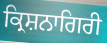
ਕ੍ਰਿਸ਼ਨਾਗਿਰੀ